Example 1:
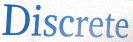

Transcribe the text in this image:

Discrete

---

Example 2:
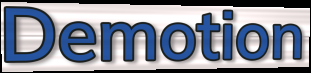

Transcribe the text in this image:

Demotion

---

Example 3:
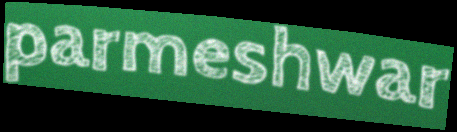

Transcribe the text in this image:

parmeshwar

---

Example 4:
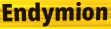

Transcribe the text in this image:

Endymion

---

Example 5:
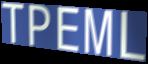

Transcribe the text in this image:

TPEML